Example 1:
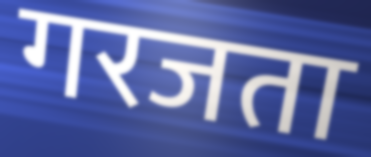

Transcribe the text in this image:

गरजता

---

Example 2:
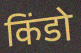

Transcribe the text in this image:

किंडो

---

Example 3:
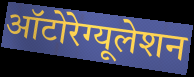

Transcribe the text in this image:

ऑटोरेग्यूलेशन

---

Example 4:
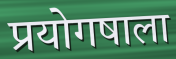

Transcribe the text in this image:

प्रयोगषाला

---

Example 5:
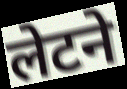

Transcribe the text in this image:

लेटने